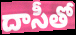
దాసీతో